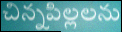
చిన్నపిల్లలను